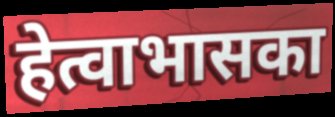
हेत्वाभासका